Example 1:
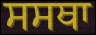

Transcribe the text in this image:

ਸਸਥਾ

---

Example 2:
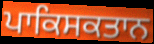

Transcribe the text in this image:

ਪਾਕਿਸਕਤਾਨ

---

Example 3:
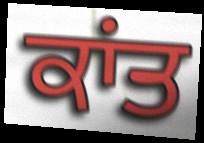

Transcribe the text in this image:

ਕਾਂਤ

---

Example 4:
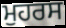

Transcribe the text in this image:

ਮੁਹਰਸ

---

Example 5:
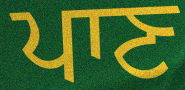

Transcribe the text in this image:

ਪਾਣ